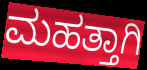
ಮಹತ್ತಾಗಿ